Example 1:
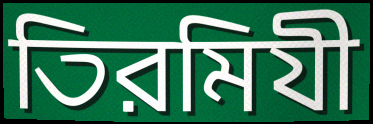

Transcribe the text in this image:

তিরমিযী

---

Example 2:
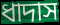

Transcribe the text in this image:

ধাদাস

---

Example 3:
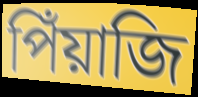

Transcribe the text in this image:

পিঁয়াজি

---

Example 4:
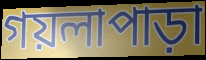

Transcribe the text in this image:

গয়লাপাড়া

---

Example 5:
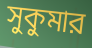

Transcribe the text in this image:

সুকুমার